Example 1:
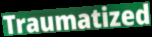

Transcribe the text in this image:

Traumatized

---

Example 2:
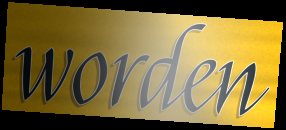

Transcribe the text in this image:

worden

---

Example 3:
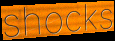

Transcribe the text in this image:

shocks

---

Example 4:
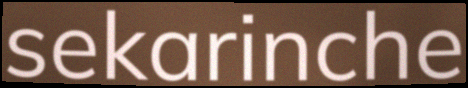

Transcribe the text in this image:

sekarinche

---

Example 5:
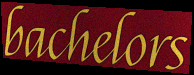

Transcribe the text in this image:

bachelors